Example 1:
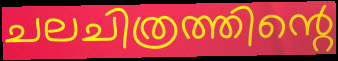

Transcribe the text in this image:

ചലചിത്രത്തിന്റെ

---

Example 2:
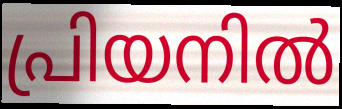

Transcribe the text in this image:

പ്രിയനിൽ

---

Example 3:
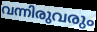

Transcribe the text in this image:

വന്നിരുവരും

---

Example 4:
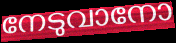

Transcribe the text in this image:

നേടുവാനോ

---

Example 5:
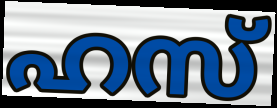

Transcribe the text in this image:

ഹസ്